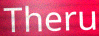
Theru